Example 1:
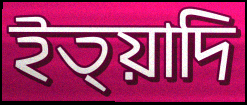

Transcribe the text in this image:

ইত্য়াদি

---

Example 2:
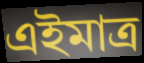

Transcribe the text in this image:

এইমাত্ৰ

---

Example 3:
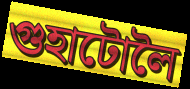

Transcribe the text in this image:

গুহাটোলৈ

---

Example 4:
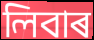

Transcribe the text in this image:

লিবাৰ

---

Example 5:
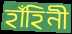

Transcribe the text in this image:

হাঁহিনী